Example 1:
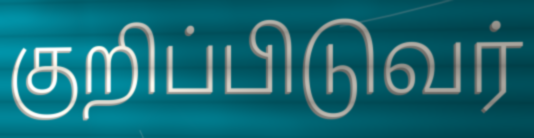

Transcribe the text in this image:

குறிப்பிடுவர்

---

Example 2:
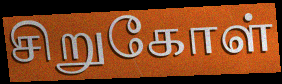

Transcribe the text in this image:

சிறுகோள்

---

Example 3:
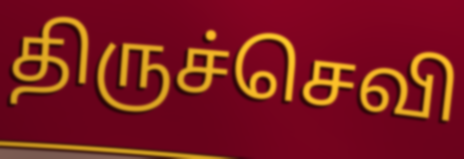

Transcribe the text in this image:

திருச்செவி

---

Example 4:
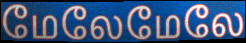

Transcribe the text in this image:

மேலேமேலே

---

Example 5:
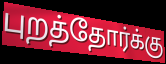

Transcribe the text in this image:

புறத்தோர்க்கு